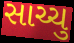
સાચ્ચુ